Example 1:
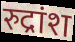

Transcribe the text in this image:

रुद्रांश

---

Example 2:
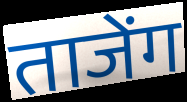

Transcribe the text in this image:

ताजेंग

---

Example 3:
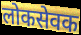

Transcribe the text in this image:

लोकसेवक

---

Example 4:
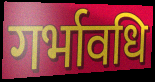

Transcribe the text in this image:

गर्भावधि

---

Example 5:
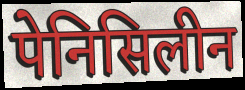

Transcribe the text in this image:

पेनिसिलीन